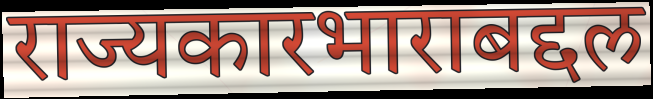
राज्यकारभाराबद्दल